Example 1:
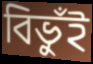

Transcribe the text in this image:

বিভুঁই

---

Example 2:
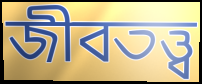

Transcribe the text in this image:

জীবতত্ত্ব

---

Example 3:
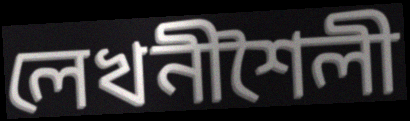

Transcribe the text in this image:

লেখনীশৈলী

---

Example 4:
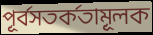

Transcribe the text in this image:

পূর্বসতর্কতামূলক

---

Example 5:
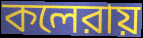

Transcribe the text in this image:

কলেরায়